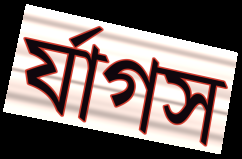
র্যাগস